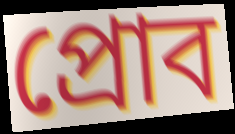
প্রোব